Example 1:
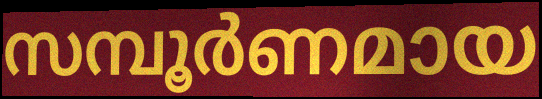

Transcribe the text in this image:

സമ്പൂർണമായ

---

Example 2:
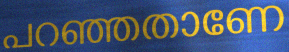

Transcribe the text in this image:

പറഞ്ഞതാണേ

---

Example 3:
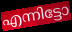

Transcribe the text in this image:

എന്നിട്ടോ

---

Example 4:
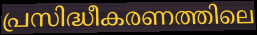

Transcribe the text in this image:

പ്രസിദ്ധീകരണത്തിലെ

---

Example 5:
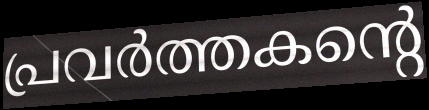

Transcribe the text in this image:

പ്രവർത്തകന്റെ